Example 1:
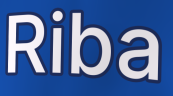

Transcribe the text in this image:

Riba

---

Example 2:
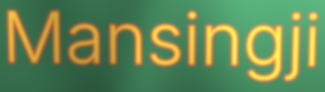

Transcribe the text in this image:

Mansingji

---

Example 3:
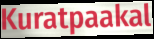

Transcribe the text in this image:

Kuratpaakal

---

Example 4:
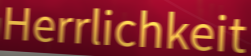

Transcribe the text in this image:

Herrlichkeit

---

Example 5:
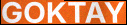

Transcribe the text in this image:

GOKTAY